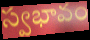
స్వభావం